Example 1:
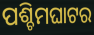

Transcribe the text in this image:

ପଶ୍ଚିମଘାଟର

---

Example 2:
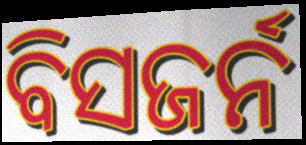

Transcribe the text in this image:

ବିସଜର୍ନ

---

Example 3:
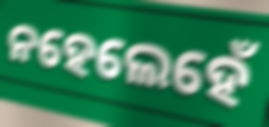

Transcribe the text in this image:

ନହେଲେହେଁ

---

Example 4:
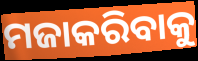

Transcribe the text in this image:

ମଜାକରିବାକୁ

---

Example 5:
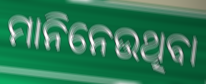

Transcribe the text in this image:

ମାନିନେଉଥିବା